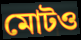
মোটও